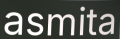
asmita